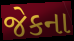
જેકના